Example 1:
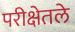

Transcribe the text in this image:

परीक्षेतले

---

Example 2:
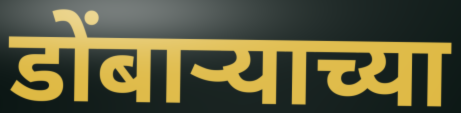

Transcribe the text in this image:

डोंबाऱ्याच्या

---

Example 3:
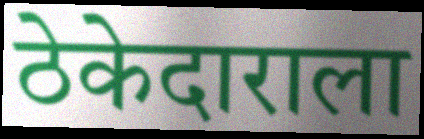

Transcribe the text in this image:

ठेकेदाराला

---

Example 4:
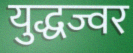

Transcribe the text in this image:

युद्धज्वर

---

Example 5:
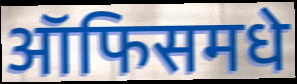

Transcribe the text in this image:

ऑफिसमधे